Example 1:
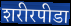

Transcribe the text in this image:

शरीरपीडा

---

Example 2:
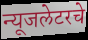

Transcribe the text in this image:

न्यूजलेटरचे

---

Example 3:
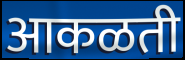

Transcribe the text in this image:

आकळती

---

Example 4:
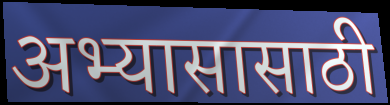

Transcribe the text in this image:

अभ्यासासाठी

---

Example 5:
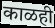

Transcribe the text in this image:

काळही